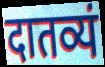
दातव्यं